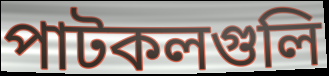
পাটকলগুলি